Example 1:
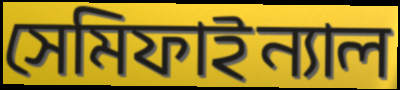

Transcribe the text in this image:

সেমিফাইন্যাল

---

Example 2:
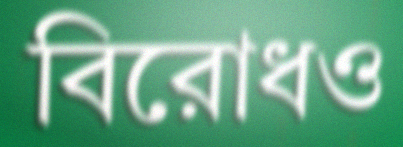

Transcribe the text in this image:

বিরোধও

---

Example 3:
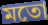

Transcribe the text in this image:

মতো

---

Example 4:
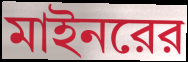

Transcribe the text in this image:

মাইনরের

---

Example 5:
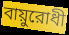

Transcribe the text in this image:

বায়ুরোধী